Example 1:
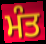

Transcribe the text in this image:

ਮੰਤ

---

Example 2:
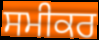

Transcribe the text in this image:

ਸਮੀਕਰ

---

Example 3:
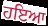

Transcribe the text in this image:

ਹਇਆ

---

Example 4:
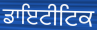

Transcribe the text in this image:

ਡਾਇਟੀਟਿਕ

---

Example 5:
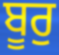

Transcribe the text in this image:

ਬੂਰੁ